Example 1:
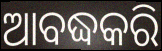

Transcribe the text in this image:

ଆବଦ୍ଧକରି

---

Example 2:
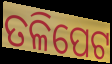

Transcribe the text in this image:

ତଳିପେଟ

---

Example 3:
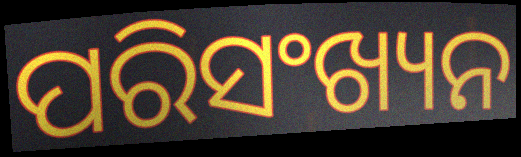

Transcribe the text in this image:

ପରିସଂଖ୍ୟନ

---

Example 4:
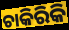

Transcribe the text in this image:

ଚାକିରିକି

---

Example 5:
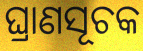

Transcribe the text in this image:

ଘ୍ରାଣସୂଚକ